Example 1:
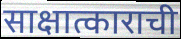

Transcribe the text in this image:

साक्षात्काराची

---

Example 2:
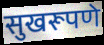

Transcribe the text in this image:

सुखरूपणे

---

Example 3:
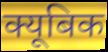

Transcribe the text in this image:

क्यूबिक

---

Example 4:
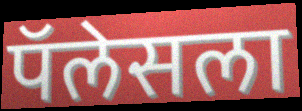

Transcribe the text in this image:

पॅलेसला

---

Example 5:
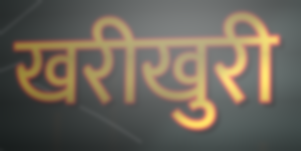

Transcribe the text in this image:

खरीखुरी